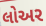
લોઅર